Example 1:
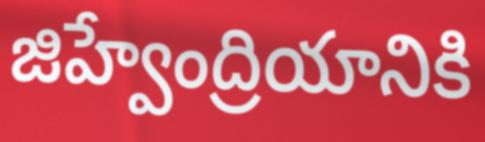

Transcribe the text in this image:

జిహ్వేంద్రియానికి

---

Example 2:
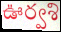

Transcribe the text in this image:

ఊర్వశి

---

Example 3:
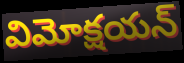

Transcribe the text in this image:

విమోక్షయన్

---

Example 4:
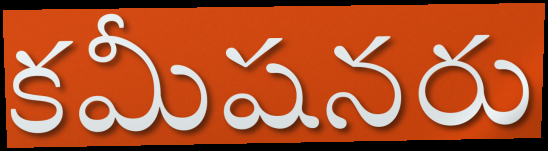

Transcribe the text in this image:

కమీషనరు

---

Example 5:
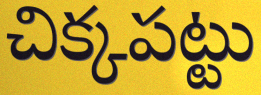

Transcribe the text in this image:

చిక్కపట్టు